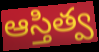
ఆస్తిత్వ